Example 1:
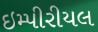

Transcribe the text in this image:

ઇમ્પીરીયલ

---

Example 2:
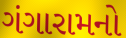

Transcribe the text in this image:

ગંગારામનો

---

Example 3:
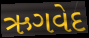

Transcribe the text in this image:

ઋગવેદ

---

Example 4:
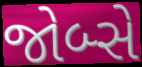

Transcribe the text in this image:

જોબ્સે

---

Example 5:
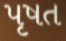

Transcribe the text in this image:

પૃષત